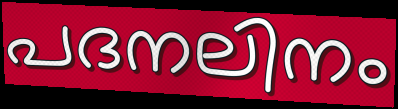
പദനലിനം